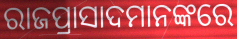
ରାଜପ୍ରାସାଦମାନଙ୍କରେ